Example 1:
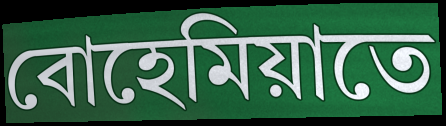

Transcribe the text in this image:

বোহেমিয়াতে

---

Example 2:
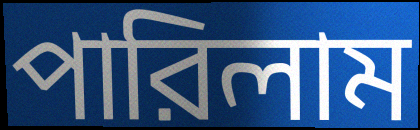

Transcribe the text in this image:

পারিলাম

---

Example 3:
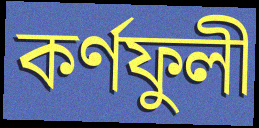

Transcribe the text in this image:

কর্ণফুলী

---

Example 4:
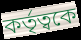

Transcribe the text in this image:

কর্তৃত্বকে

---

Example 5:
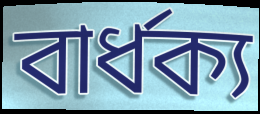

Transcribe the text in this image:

বার্ধক্য